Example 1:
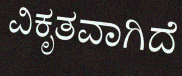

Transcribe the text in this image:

ವಿಕೃತವಾಗಿದೆ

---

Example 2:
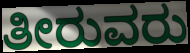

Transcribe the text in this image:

ತೀರುವರು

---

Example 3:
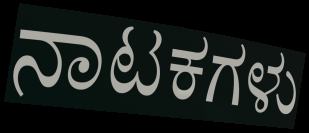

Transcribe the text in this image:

ನಾಟಕಗಳು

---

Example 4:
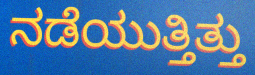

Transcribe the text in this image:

ನಡೆಯುತ್ತಿತ್ತು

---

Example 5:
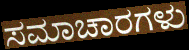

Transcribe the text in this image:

ಸಮಾಚಾರಗಳು